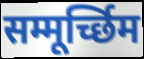
सम्मूर्च्छिम